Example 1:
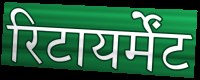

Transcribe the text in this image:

रिटायर्मेंट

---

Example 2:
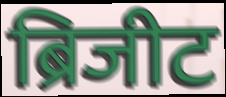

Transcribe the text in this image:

ब्रिजीट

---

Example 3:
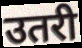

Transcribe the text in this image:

उतरी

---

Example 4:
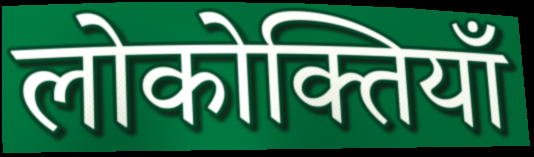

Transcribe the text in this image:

लोकोक्तियाँ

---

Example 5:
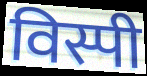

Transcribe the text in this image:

विस्पी